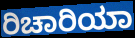
ರಿಚಾರಿಯಾ